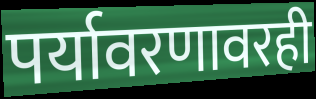
पर्यावरणावरही